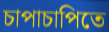
চাপাচাপিতে